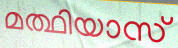
മത്ഥിയാസ്